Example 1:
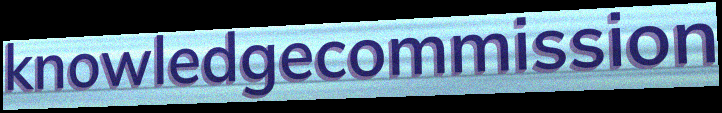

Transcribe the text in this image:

knowledgecommission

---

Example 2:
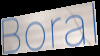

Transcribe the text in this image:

Boral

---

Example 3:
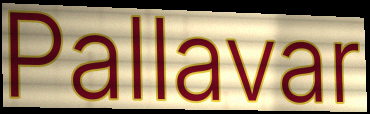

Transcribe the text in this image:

Pallavar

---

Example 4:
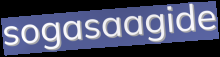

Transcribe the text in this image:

sogasaagide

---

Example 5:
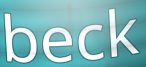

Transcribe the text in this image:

beck